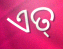
ଏତ୍